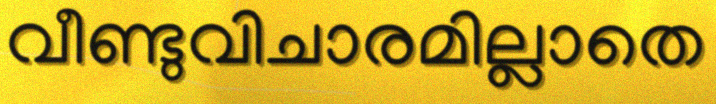
വീണ്ടുവിചാരമില്ലാതെ